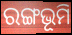
ରଙ୍ଗଭୂମି